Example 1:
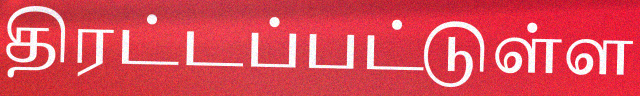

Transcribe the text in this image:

திரட்டப்பட்டுள்ள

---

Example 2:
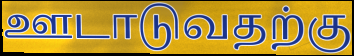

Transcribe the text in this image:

ஊடாடுவதற்கு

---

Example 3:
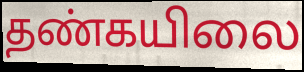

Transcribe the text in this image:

தண்கயிலை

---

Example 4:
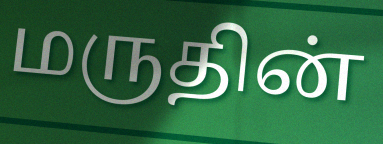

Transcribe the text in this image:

மருதின்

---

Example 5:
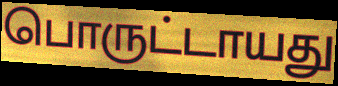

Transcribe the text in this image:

பொருட்டாயது